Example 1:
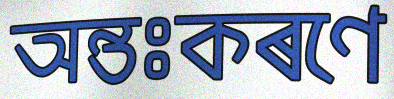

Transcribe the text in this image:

অন্তঃকৰণে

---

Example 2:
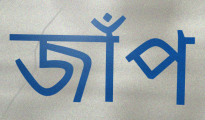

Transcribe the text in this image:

জাঁপ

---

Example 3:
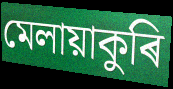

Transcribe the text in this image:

মেলায়াকুৰি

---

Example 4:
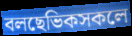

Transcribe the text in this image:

বলছেভিকসকলে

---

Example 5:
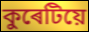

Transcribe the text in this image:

কুৰেটিয়ে